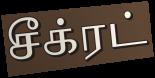
சீக்ரட்